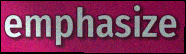
emphasize